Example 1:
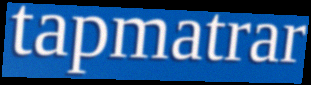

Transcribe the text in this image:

tapmatrar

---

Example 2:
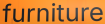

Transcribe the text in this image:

furniture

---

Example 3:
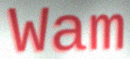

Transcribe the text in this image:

Wam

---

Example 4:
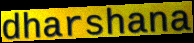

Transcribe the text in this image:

dharshana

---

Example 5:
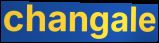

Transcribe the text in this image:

changale